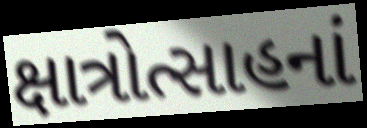
ક્ષાત્રોત્સાહનાં